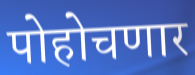
पोहोचणार